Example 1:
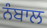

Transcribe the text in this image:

ਨੰਬਾਲ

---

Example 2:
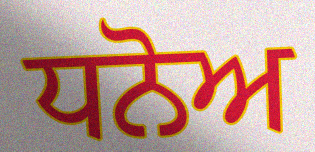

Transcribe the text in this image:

ਧਨੋਅ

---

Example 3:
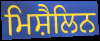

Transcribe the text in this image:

ਮਿਸ਼ੈਲਿਨ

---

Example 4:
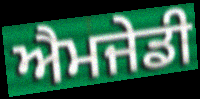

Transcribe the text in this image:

ਐਮਜੇਡੀ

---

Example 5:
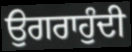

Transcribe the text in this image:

ਉਗਰਾਹੁੰਦੀ